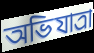
অভিযাত্রা